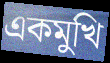
একমুখি